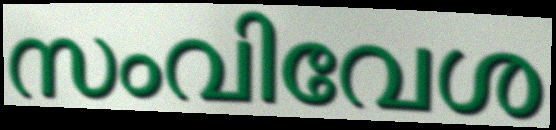
സംവിവേശ